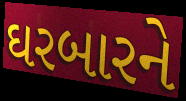
ઘરબારને